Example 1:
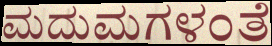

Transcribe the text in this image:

ಮದುಮಗಳಂತೆ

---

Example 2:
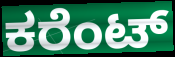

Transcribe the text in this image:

ಕರೆಂಟ್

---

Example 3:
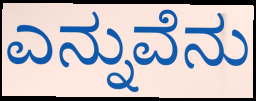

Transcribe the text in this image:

ಎನ್ನುವೆನು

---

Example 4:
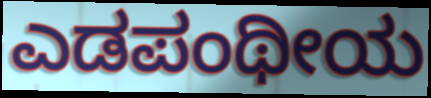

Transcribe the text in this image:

ಎಡಪಂಥೀಯ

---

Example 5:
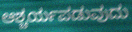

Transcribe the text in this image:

ಆಶ್ಚರ್ಯಪಡುವುದು